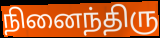
நினைந்திரு